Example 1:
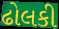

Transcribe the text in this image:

ઢોલકી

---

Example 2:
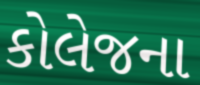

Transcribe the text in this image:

કોલેજના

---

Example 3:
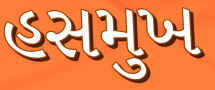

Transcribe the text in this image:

હસમુખ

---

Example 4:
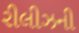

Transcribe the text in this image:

રીલીઝની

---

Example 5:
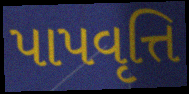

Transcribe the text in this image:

પાપવૃત્તિ